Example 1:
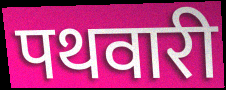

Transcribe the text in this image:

पथवारी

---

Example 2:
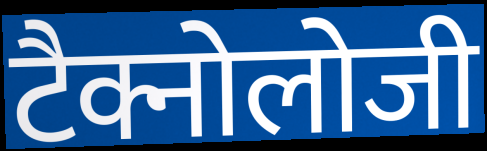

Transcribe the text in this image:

टैक्नोलोजी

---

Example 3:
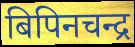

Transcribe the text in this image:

बिपिनचन्द्र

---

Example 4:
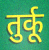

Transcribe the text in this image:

तुर्कू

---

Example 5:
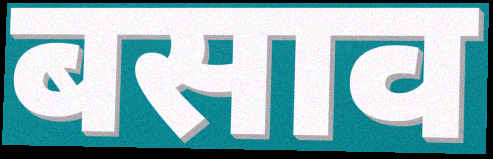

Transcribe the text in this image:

बसाव